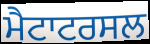
ਮੈਟਾਟਰਸਲ